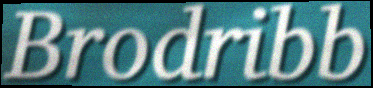
Brodribb